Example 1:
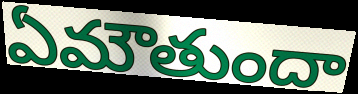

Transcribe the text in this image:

ఏమౌతుందా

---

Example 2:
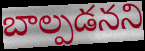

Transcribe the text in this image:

బాల్పడనని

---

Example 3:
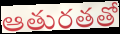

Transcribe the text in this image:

ఆతురతతో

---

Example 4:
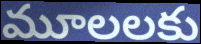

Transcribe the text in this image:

మూలలకు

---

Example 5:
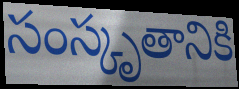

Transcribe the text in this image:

సంస్కృతానికి